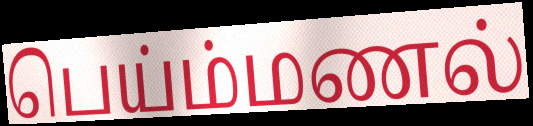
பெய்ம்மணல்